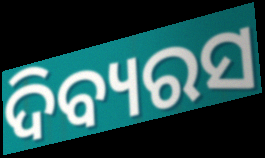
ଦିବ୍ୟରସ